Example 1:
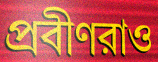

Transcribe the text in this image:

প্রবীণরাও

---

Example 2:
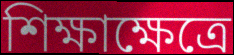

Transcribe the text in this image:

শিক্ষাক্ষেত্রে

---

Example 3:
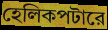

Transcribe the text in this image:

হেলিকপটারে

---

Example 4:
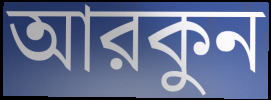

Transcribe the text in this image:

আরকুন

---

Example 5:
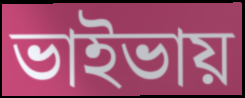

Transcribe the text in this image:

ভাইভায়